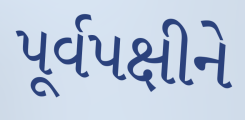
પૂર્વપક્ષીને